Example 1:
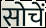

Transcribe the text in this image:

सोचें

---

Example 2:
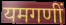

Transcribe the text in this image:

यमगणीं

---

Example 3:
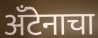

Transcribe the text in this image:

अँटेनाचा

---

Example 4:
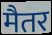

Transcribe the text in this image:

मैतर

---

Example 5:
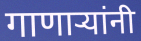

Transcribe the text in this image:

गाणाऱ्यांनी